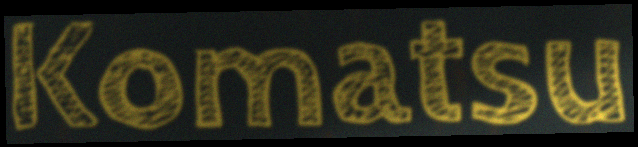
Komatsu